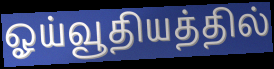
ஓய்வூதியத்தில்